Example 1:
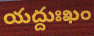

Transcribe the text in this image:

యద్దుఃఖం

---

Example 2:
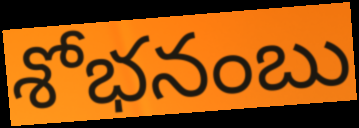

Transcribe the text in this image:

శోభనంబు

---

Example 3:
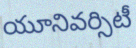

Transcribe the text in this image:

యూనివర్సిటీ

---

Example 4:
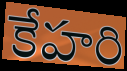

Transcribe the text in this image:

కేహరి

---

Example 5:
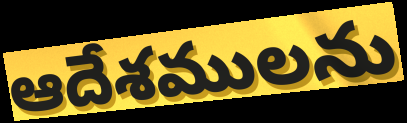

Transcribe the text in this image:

ఆదేశములను